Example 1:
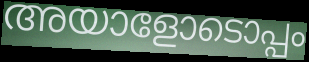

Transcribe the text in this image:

അയാളോടൊപ്പം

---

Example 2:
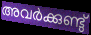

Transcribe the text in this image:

അവർക്കുണ്ടു്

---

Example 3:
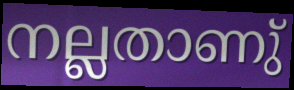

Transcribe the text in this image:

നല്ലതാണു്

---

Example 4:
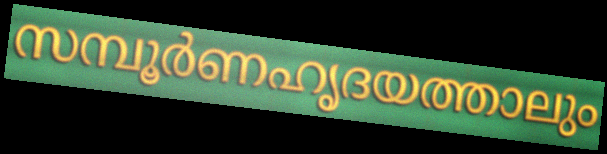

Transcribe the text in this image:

സമ്പൂർണഹൃദയത്താലും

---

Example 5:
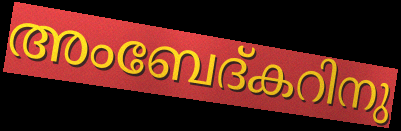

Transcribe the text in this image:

അംബേദ്കറിനു